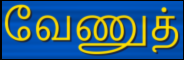
வேணுத்